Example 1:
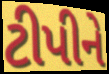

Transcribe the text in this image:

ટીપીને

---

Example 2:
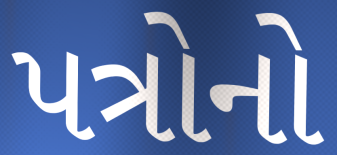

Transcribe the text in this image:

પત્રોનો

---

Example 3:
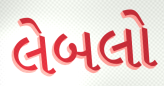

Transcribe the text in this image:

લેબલો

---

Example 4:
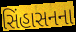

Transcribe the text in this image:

સિંહાસનના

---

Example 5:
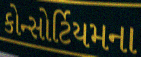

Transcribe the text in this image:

કોન્સોર્ટિયમના